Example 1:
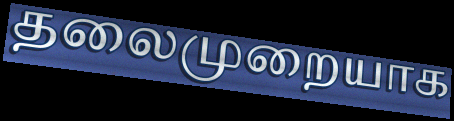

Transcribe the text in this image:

தலைமுறையாக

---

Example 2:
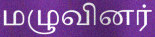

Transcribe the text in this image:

மழுவினர்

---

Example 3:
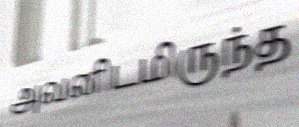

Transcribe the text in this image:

அவனிடமிருந்த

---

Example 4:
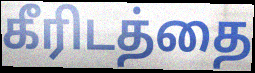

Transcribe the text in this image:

கீரிடத்தை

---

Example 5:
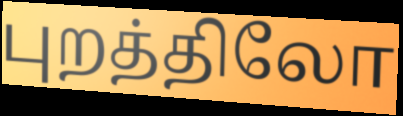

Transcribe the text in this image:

புறத்திலோ